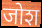
जोश